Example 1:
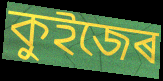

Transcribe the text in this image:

কুইজেৰ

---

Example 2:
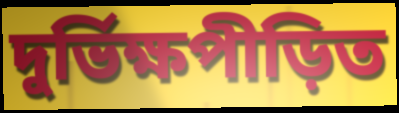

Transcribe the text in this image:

দুৰ্ভিক্ষপীড়িত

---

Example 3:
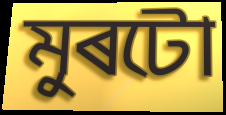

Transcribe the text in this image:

মুৰটো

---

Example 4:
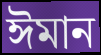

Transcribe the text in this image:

ঈমান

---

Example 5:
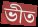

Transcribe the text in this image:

ভীত